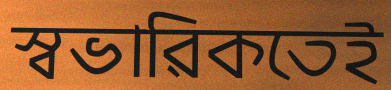
স্বভাৱিকতেই